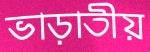
ভাড়াতীয়